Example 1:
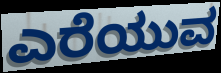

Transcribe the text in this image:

ಎರೆಯುವ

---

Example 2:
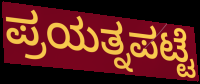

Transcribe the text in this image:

ಪ್ರಯತ್ನಪಟ್ಟೆ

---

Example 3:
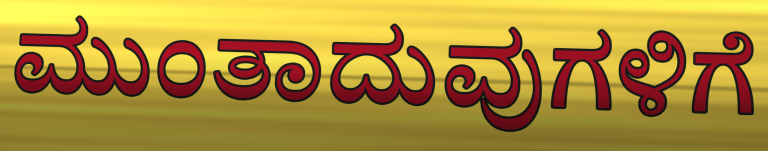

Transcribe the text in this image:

ಮುಂತಾದುವುಗಳಿಗೆ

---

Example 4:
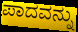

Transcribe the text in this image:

ಪಾದವನ್ನು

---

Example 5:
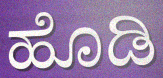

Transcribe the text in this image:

ಹೊಡಿ